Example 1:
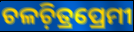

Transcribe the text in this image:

ଚଳଚ଼ିତ୍ରପ୍ରେମୀ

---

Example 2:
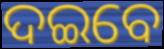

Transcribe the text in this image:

ଦଇବେ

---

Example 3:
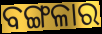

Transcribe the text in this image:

ବଙ୍ଗଳାର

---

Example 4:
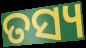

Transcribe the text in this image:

ତସ୍ୟ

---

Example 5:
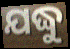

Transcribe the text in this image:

ଯଦ୍ଧୁ